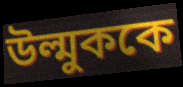
উল্মুককে